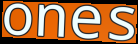
ones